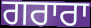
ਗਰਾਰਾ